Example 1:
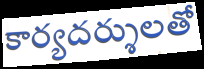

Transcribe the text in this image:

కార్యదర్శులతో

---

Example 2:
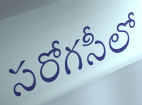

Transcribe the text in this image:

సరోగసీలో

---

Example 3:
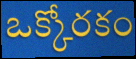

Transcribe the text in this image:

ఒక్కోరకం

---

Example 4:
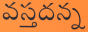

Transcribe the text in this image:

వస్తదన్న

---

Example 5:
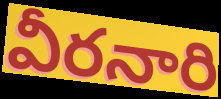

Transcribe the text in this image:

వీరనారి